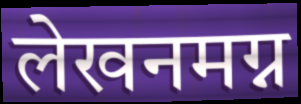
लेखनमग्न